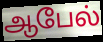
ஆபேல்